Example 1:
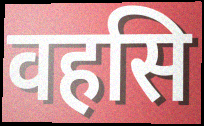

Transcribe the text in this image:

वहसि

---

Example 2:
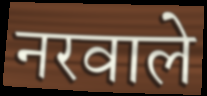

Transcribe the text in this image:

नरवाले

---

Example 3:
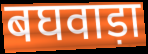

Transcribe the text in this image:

बघवाड़ा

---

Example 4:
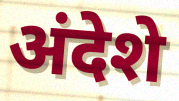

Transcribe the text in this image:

अंदेशे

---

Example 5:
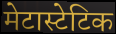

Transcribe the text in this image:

मेटास्टेटिक